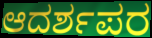
ಆದರ್ಶಪರ